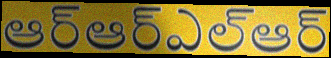
ఆర్ఆర్ఎల్ఆర్